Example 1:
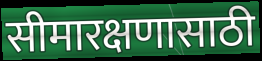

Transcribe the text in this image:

सीमारक्षणासाठी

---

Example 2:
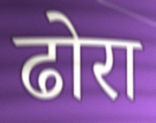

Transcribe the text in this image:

ढोरा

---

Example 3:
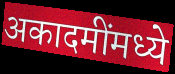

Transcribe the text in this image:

अकादमींमध्ये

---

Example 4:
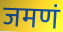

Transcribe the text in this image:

जमणं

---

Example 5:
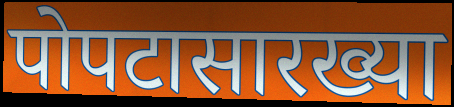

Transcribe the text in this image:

पोपटासारख्या